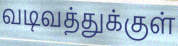
வடிவத்துக்குள்